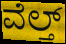
ವೆಲ್ತ್